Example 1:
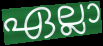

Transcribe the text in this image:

ഏല്ലാ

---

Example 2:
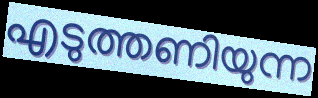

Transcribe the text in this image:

എടുത്തണിയുന്ന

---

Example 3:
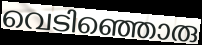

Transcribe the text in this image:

വെടിഞ്ഞൊരു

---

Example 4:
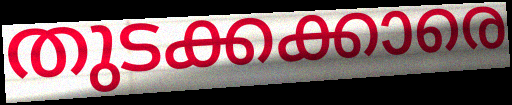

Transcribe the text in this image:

തുടക്കക്കാരെ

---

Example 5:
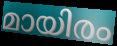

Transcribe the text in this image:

മായിരം